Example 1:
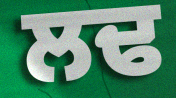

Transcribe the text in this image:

ਲਢ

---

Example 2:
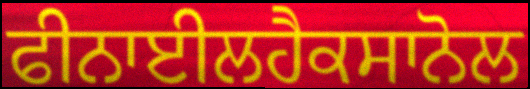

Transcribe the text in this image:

ਫੀਨਾਈਲਹੈਕਸਾਨੋਲ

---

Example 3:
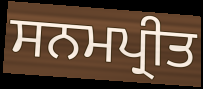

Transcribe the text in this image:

ਸਨਮਪ੍ਰੀਤ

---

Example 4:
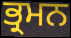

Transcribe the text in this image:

ਭ੍ਰਮਨ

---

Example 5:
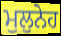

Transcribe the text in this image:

ਮੁਲੁਨੇਹ